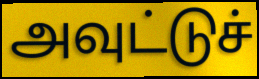
அவுட்டுச்